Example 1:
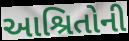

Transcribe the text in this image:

આશ્રિતોની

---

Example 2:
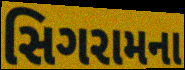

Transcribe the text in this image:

સિગરામના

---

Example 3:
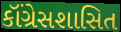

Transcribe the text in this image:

કૉંગ્રેસશાસિત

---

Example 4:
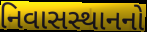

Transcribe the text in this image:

નિવાસસ્થાનનો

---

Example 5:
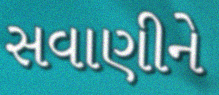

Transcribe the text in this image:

સવાણીને